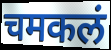
चमकलं